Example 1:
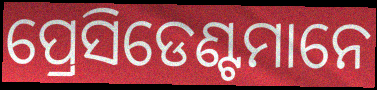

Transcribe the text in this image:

ପ୍ରେସିଡେଣ୍ଟମାନେ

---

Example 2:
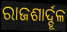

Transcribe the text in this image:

ରାଜଶାର୍ଦ୍ଦୂଳ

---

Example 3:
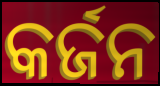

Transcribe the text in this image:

କର୍ଜନ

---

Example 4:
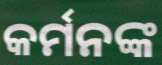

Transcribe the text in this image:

କର୍ମନଙ୍କ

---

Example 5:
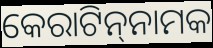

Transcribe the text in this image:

କେରାଟିନ୍‌ନାମକ